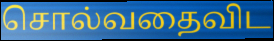
சொல்வதைவிட